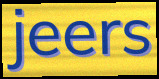
jeers